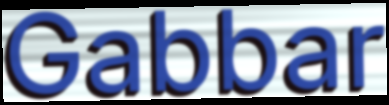
Gabbar